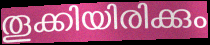
തൂക്കിയിരിക്കും